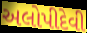
અલોપીદેવી